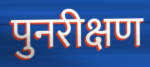
पुनरीक्षण